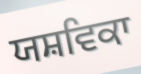
ਯਸ਼ਵਿਕਾ